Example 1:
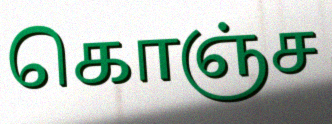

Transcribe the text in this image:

கொஞ்ச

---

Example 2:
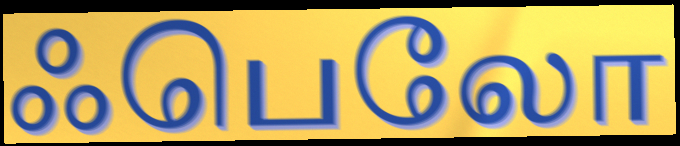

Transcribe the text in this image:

ஃபெலோ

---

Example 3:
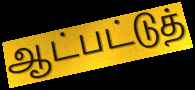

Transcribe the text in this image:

ஆட்பட்டுத்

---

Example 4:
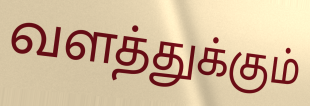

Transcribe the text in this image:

வளத்துக்கும்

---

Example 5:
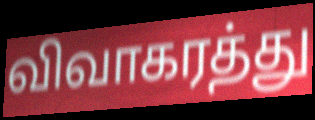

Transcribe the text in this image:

விவாகரத்து